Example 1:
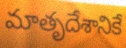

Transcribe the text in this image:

మాతృదేశానికే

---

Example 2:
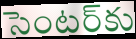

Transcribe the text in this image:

సెంటర్‌కు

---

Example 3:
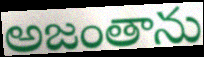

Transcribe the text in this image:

అజంతాను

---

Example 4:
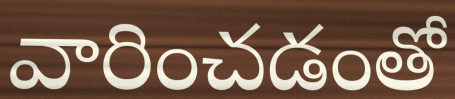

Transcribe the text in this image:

వారించడంతో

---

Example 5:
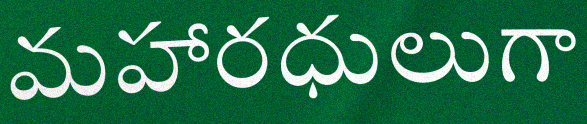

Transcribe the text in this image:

మహారధులుగా